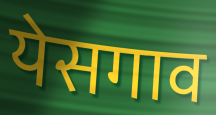
येसगाव